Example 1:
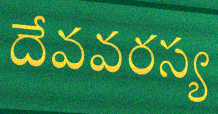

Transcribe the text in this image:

దేవవరస్య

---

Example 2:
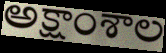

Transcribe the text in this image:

అక్షాంశాల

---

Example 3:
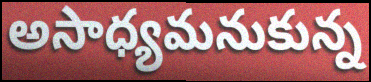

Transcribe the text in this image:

అసాధ్యమనుకున్న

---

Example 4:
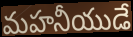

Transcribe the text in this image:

మహనీయుడే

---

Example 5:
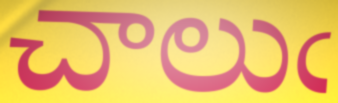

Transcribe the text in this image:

చాలుఁ